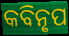
କବିନୃପ